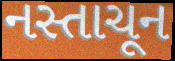
નસ્તાચૂન